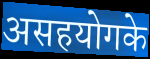
असहयोगके